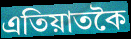
এতিয়াতকৈ